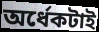
অর্ধেকটাই